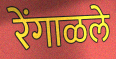
रेंगाळले